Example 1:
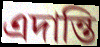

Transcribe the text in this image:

এদান্তি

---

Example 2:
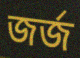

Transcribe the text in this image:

জর্জ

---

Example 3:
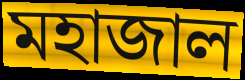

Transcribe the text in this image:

মহাজাল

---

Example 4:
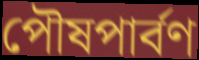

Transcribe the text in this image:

পৌষপার্বণ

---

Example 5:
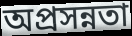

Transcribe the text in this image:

অপ্রসন্নতা